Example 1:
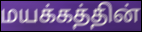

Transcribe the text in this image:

மயக்கத்தின்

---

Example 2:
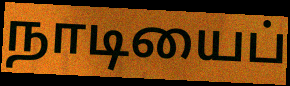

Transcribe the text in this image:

நாடியைப்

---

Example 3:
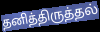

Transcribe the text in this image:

தனித்திருத்தல்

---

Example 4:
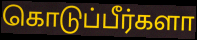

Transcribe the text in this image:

கொடுப்பீர்களா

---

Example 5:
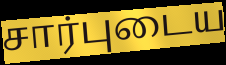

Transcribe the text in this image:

சார்புடைய